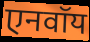
एनवॉय